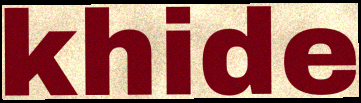
khide